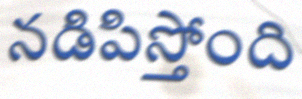
నడిపిస్తోంది